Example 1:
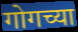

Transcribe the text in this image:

गोगच्या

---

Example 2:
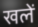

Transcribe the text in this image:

खलें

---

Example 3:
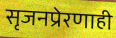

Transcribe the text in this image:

सृजनप्रेरणाही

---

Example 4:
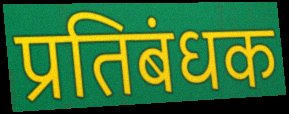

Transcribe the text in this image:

प्रतिबंधक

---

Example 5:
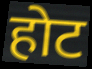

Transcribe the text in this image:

होट